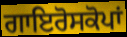
ਗਾਇਰੋਸਕੋਪਾਂ